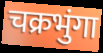
चक्रभुंगा